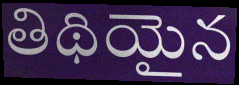
తిథియైన